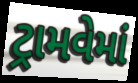
ટ્રામવેમાં